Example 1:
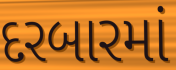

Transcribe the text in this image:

દરબારમાં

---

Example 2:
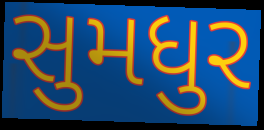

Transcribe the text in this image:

સુમધુર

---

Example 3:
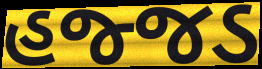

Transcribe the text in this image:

હજ્જડ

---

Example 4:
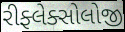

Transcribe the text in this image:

રીફ્લેક્સોલોજી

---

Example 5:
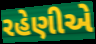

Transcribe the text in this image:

રહેણીએ